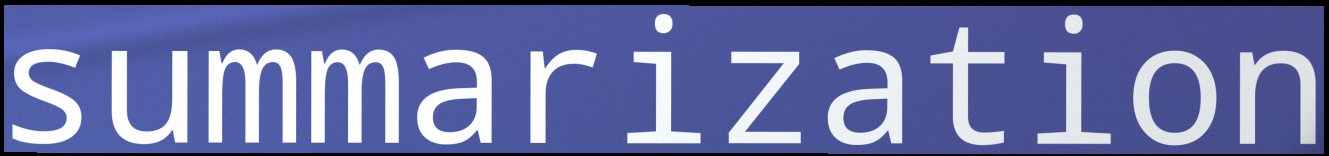
summarization